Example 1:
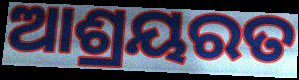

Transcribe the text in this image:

ଆଶ୍ରୟରତ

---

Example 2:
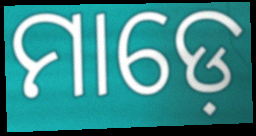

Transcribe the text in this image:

ମାଡ଼େ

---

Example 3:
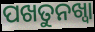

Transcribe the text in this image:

ପଖତୁନଖ୍ୱା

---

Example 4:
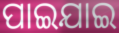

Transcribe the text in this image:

ପାଇଯାଇ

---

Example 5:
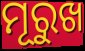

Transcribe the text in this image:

ମୂରୁଖ